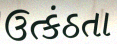
ઉત્કંઠતા